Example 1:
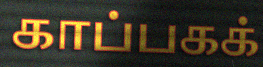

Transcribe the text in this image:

காப்பகக்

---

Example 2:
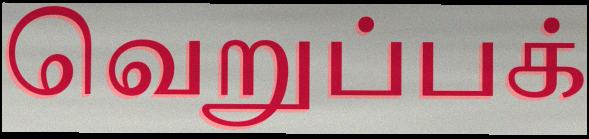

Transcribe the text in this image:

வெறுப்பக்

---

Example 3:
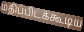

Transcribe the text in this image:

மதிப்பிடக்கூடிய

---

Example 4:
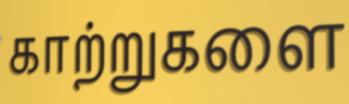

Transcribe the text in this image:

காற்றுகளை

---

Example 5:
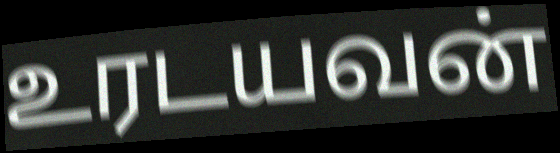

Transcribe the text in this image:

உரடயவன்